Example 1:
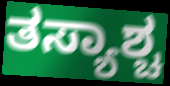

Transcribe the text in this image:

ತಸ್ಯಾಶ್ಚ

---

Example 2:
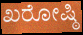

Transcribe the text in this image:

ಖರೋಷ್ಠಿ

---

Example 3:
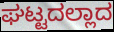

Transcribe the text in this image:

ಘಟ್ಟದಲ್ಲಾದ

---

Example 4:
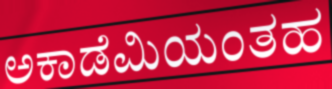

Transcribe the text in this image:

ಅಕಾಡೆಮಿಯಂತಹ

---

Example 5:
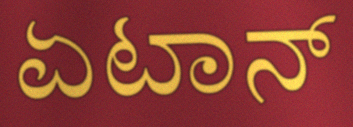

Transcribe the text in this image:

ಏಟಾನ್